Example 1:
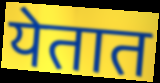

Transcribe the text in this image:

येतात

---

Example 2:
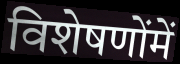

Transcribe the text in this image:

विशेषणोंमें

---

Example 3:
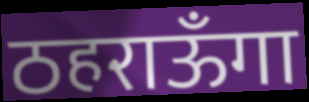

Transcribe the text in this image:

ठहराऊँगा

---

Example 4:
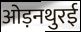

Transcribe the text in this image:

ओड़नथुरई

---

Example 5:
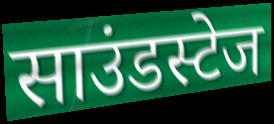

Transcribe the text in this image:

साउंडस्टेज